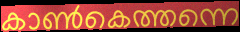
കാൺകെത്തന്നെ